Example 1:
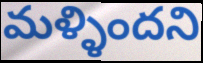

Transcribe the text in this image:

మళ్ళిందని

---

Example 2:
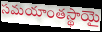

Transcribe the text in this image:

సమయాంతస్థాయై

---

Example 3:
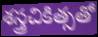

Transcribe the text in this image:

శస్త్రచికిత్సతో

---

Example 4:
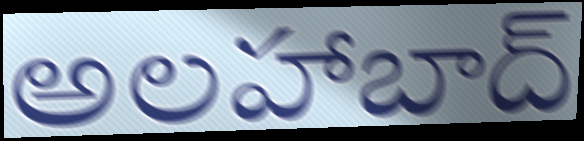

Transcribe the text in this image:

అలహాబాద్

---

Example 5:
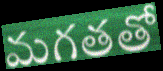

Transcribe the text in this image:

మగతతో